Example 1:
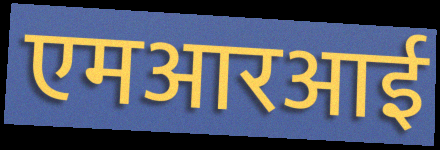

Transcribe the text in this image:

एमआरआई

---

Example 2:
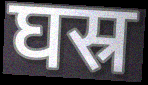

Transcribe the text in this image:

घस्र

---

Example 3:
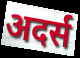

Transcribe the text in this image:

अदर्स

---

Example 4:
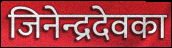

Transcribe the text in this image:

जिनेन्द्रदेवका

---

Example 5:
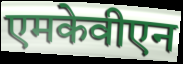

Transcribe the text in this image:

एमकेवीएन